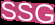
SSG